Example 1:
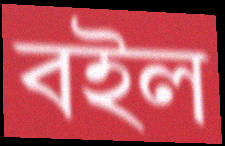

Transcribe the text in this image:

বইল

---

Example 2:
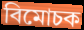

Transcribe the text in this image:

বিমোচক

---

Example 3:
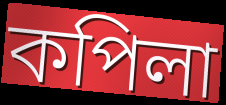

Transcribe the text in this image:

কপিলা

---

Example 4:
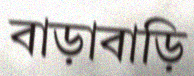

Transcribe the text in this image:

বাড়াবাড়ি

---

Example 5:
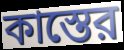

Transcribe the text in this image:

কাস্তের